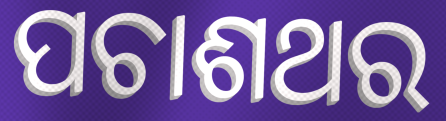
ପଚାଶଥର